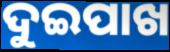
ଦୁଇପାଖ